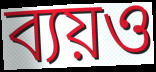
ব্যয়ও